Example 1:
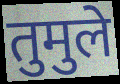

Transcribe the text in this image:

तुमुले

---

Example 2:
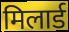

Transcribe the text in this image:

मिलार्ड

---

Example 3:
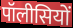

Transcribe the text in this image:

पॉलीसियों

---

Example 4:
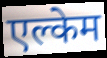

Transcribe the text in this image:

एल्केम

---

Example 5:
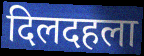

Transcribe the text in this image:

दिलदहला